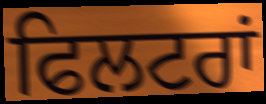
ਫਿਲਟਰਾਂ